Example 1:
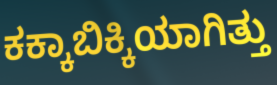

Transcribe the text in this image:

ಕಕ್ಕಾಬಿಕ್ಕಿಯಾಗಿತ್ತು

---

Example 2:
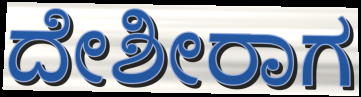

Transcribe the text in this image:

ದೇಶೀರಾಗ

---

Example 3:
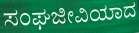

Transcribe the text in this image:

ಸಂಘಜೀವಿಯಾದ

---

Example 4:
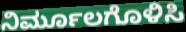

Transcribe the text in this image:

ನಿರ್ಮೂಲಗೊಳಿಸಿ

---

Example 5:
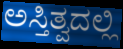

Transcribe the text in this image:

ಅಸ್ತಿತ್ವದಲ್ಲಿ